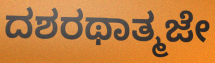
ದಶರಥಾತ್ಮಜೇ